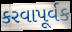
કરવાપૂર્વક